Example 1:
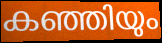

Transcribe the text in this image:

കഞ്ഞിയും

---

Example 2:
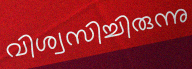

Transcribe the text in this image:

വിശ്വസിച്ചിരുന്നു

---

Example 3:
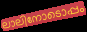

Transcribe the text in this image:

ലാലിനോടൊപ്പം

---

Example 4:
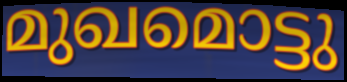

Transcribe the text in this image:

മുഖമൊട്ടു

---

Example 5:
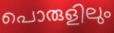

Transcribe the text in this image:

പൊരുളിലും